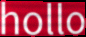
hollo